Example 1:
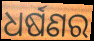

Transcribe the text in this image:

ଧର୍ଷଣର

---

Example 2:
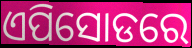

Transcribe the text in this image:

ଏପିସୋଡରେ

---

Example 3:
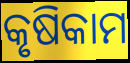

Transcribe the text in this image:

କୃଷିକାମ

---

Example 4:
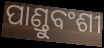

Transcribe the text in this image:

ପାଣ୍ଡୁବଂଶୀ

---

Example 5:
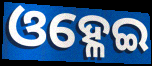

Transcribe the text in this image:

ଓହ୍ଳେଇ